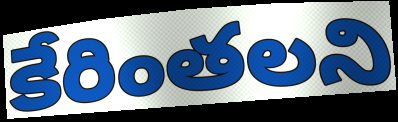
కేరింతలని